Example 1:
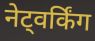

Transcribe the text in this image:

नेट्वर्किंग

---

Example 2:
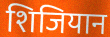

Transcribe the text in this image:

शिजियान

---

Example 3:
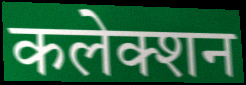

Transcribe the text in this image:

कलेक्शन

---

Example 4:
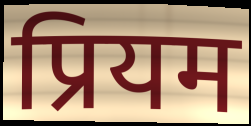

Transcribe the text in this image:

प्रियम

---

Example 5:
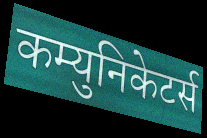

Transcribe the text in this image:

कम्युनिकेटर्स